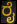
ರೈ